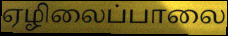
ஏழிலைப்பாலை